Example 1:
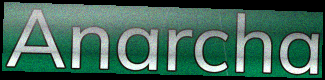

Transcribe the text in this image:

Anarcha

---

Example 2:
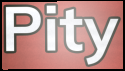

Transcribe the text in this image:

Pity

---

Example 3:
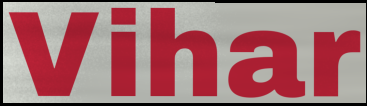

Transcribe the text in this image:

Vihar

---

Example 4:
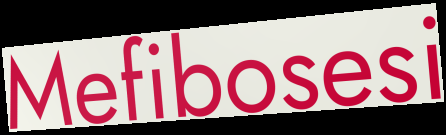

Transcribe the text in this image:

Mefibosesi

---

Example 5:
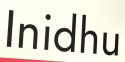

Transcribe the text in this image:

Inidhu